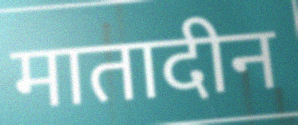
मातादीन